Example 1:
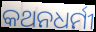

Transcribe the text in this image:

କଥନଧର୍ମୀ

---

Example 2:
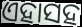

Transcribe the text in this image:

ଏହାସହ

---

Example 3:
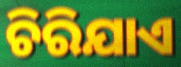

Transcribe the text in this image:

ଚିରିଯାଏ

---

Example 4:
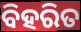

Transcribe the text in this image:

ବିହରିତ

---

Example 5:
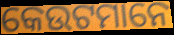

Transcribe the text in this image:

କେଉଟମାନେ